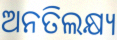
ଅନତିଲକ୍ଷ୍ୟ